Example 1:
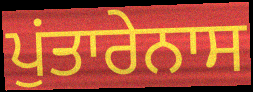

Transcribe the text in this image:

ਪੁਂਤਾਰੇਨਾਸ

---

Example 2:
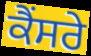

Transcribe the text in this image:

ਕੈਂਸਰੇ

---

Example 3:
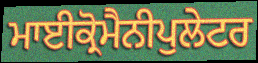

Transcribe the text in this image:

ਮਾਈਕ੍ਰੋਮੈਨੀਪੁਲੇਟਰ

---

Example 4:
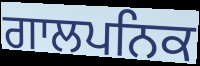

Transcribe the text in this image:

ਗਾਲਪਨਿਕ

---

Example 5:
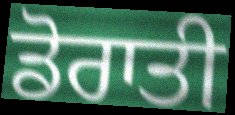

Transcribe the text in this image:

ਡੋਰਾਤੀ